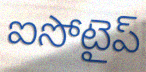
ఐసోటైప్